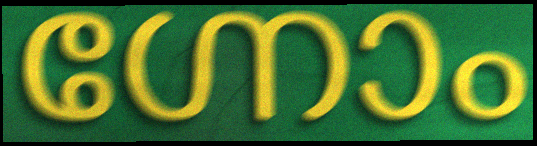
ഗ്നോം